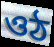
ওঠ